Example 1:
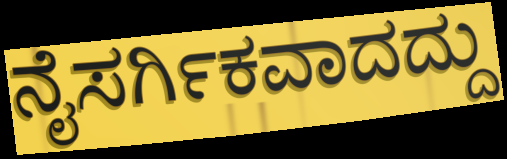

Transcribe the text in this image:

ನೈಸರ್ಗಿಕವಾದದ್ದು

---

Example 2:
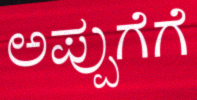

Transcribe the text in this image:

ಅಪ್ಪುಗೆಗೆ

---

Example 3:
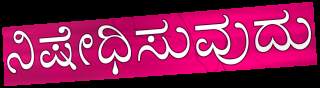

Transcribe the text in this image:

ನಿಷೇಧಿಸುವುದು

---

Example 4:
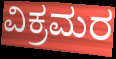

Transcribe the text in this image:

ವಿಕ್ರಮರ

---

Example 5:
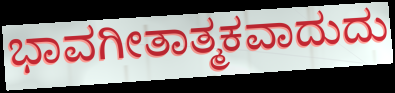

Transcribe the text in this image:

ಭಾವಗೀತಾತ್ಮಕವಾದುದು